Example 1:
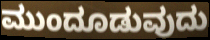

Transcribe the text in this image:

ಮುಂದೂಡುವುದು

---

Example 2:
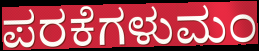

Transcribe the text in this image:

ಪರಕೆಗಳುಮಂ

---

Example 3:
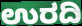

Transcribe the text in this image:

ಉರದಿ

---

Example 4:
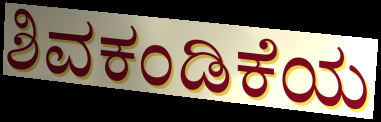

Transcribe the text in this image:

ಶಿವಕಂಡಿಕೆಯ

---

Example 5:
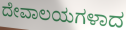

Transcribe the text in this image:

ದೇವಾಲಯಗಳಾದ